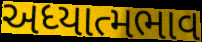
અધ્યાત્મભાવ